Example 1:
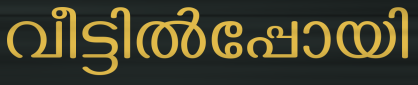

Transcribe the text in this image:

വീട്ടിൽപ്പോയി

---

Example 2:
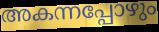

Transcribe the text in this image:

അകന്നപ്പോഴും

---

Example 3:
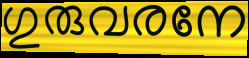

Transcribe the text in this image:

ഗുരുവരനേ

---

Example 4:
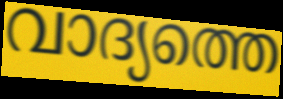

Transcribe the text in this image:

വാദ്യത്തെ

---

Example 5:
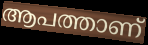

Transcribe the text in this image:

ആപത്താണ്